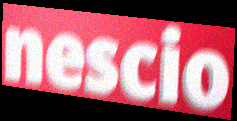
nescio